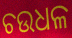
ଚଉଧଳ